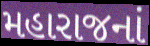
મહારાજનાં